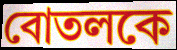
বোতলকে